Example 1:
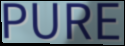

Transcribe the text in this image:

PURE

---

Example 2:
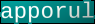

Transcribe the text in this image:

apporul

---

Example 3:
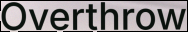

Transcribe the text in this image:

Overthrow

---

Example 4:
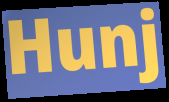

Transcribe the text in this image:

Hunj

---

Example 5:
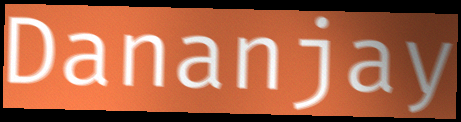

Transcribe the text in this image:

Dananjay